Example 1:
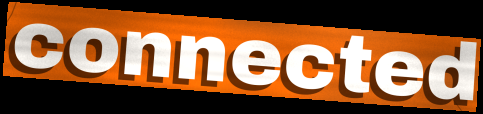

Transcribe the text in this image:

connected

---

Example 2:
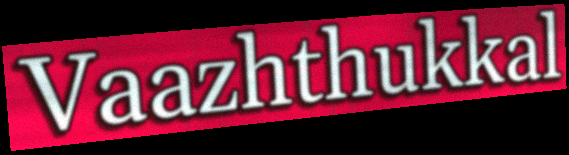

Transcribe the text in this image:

Vaazhthukkal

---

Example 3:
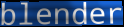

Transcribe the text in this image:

blender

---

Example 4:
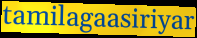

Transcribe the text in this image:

tamilagaasiriyar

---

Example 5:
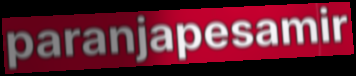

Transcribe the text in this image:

paranjapesamir